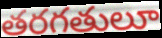
తరగతులూ